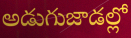
అడుగుజాడల్లో